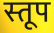
स्तूप